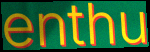
enthu